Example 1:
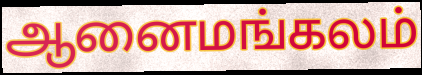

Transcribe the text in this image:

ஆனைமங்கலம்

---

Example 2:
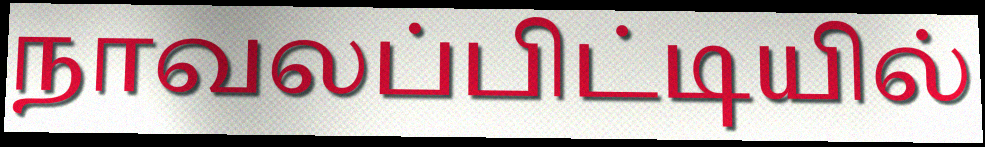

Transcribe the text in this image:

நாவலப்பிட்டியில்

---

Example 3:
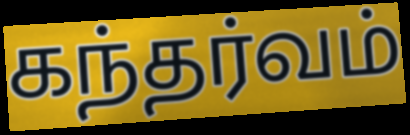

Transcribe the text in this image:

கந்தர்வம்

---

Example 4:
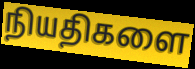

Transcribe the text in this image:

நியதிகளை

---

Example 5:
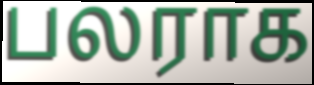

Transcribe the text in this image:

பலராக